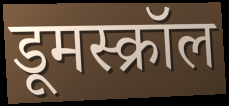
डूमस्क्रॉल